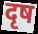
दृष